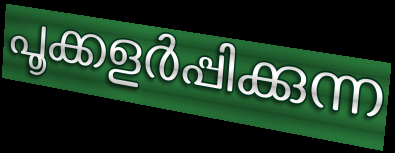
പൂക്കളർപ്പിക്കുന്ന